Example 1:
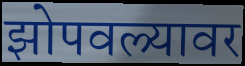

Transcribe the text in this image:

झोपवल्यावर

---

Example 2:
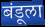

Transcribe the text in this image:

बंडूला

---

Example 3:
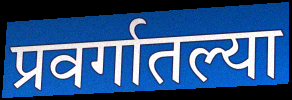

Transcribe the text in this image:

प्रवर्गातल्या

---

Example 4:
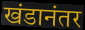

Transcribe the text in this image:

खंडानंतर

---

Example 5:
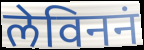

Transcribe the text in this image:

लेविननं